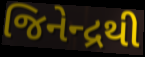
જિનેન્દ્રથી